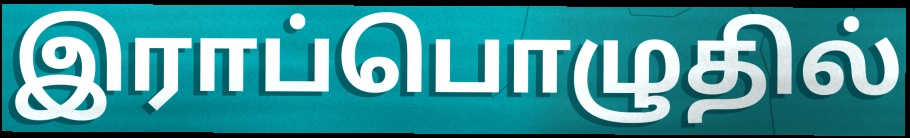
இராப்பொழுதில்